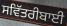
ਸਵਿੱਤਰੀਬਾਈ